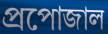
প্রপোজাল